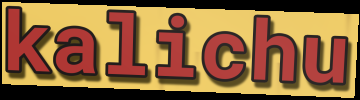
kalichu